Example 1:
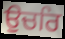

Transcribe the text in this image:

ਉਚਰਿ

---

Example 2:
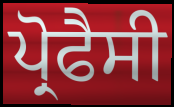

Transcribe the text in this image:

ਪ੍ਰੋਫੈਸੀ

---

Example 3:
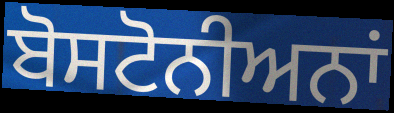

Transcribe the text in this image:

ਬੋਸਟੋਨੀਅਨਾਂ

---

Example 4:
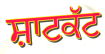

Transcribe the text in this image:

ਸ਼ਾਟਕੱਟ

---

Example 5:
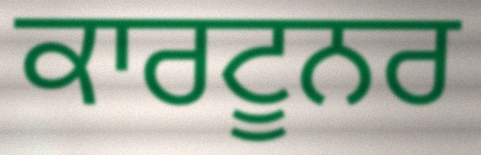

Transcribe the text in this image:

ਕਾਰਟੂਨਰ